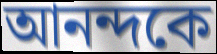
আনন্দকে